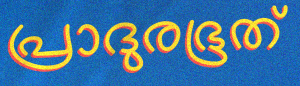
പ്രാദുരഭൂത്